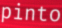
pinto